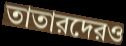
তাতারদেরও